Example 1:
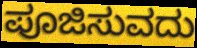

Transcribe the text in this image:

ಪೂಜಿಸುವದು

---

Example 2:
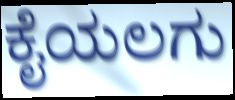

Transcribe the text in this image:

ಕೈಯಲಗು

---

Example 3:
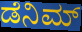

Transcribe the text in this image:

ಡೆನಿಮ್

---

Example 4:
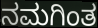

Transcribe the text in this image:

ನಮಗಿಂತ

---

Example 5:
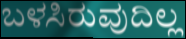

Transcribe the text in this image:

ಬಳಸಿರುವುದಿಲ್ಲ